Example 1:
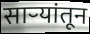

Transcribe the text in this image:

साऱ्यांतून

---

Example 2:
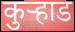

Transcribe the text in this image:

कुर्‍हाड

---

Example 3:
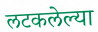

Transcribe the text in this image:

लटकलेल्या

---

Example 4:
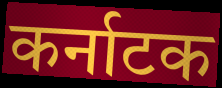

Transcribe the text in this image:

कर्नाटक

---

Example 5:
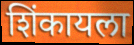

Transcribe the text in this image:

शिंकायला